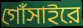
গোঁসাইরে